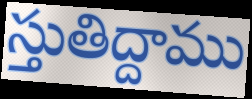
స్తుతిద్దాము